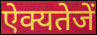
ऐक्यतेजें